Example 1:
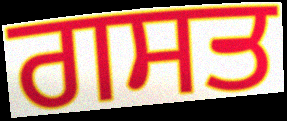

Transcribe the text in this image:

ਗਸਤ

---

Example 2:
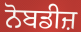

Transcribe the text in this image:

ਨੋਬਡੀਜ਼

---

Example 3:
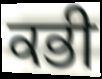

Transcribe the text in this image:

ਕਭੀ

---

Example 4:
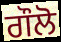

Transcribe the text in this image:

ਗੌਲੋ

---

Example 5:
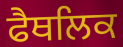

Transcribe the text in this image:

ਫੈਥਲਿਕ